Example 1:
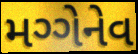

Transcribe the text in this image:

મગ્ગેનેવ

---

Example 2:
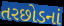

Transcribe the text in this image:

તરછોડનાં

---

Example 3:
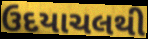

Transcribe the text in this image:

ઉદયાચલથી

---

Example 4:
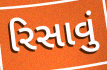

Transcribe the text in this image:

રિસાવું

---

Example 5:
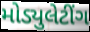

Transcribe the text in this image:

મોડ્યુલેટીંગ